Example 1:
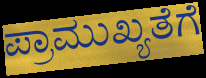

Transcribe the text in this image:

ಪ್ರಾಮುಖ್ಯತೆಗೆ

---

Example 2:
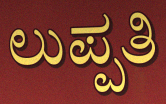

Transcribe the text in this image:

ಲುಪ್ಪತಿ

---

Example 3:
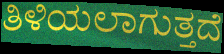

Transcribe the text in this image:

ತಿಳಿಯಲಾಗುತ್ತದೆ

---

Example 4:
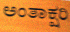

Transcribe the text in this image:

ಅಂತಾಕ್ಷರಿ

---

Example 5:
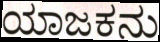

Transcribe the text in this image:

ಯಾಜಕನು